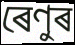
ৰেণুৰ